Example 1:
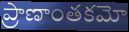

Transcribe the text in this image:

ప్రాణాంతకమో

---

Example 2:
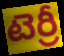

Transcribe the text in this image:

టెర్రీ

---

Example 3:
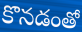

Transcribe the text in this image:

కొనడంతో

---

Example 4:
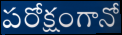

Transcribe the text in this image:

పరోక్షంగానో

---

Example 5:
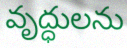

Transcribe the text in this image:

వృద్ధులను